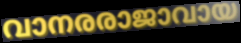
വാനരരാജാവായ